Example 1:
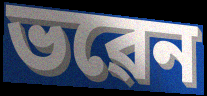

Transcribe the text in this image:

ভৱেন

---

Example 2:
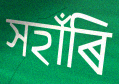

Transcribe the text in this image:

সহাঁৰি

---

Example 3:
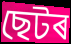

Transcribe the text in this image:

ছেটৰ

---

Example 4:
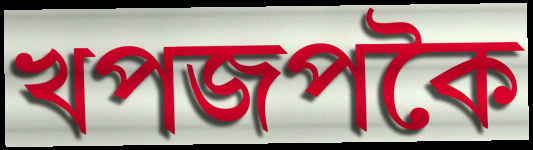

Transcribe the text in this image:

খপজপকৈ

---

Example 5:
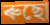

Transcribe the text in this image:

ৰুছো